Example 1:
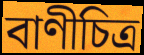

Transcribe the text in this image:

বাণীচিত্র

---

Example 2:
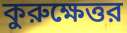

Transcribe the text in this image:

কুরুক্ষেত্তর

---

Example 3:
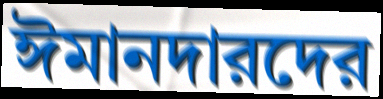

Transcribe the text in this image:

ঈমানদারদের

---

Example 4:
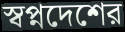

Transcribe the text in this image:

স্বপ্নদেশের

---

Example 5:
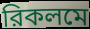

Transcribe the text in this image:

রিকলমে